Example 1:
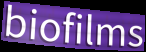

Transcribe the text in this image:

biofilms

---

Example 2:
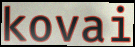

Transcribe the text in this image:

kovai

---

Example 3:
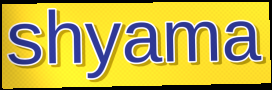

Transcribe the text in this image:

shyama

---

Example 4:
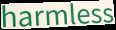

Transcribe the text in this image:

harmless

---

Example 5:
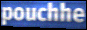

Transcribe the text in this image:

pouchhe